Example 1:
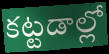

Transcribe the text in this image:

కట్టడాల్లో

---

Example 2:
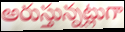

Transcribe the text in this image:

అరుస్తున్నట్లుగా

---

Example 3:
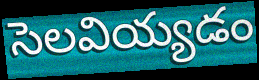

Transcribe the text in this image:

సెలవియ్యడం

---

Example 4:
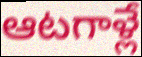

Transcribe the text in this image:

ఆటగాళ్లే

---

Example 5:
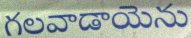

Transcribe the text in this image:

గలవాడాయెను